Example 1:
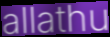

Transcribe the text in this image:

allathu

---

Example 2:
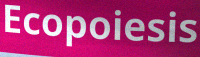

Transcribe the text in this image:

Ecopoiesis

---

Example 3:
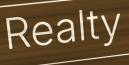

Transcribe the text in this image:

Realty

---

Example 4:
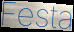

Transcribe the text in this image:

Festa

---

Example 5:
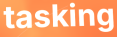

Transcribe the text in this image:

tasking